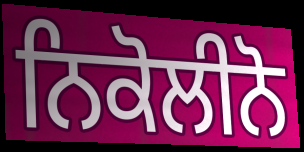
ਨਿਕੋਲੀਨੋ